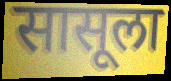
सासूला